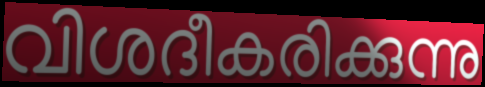
വിശദീകരിക്കുന്നു